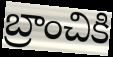
బ్రాంచికి